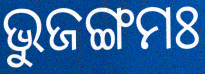
ଭୁଜଙ୍ଗମଃ